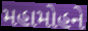
મહામોહને